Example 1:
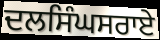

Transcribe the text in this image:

ਦਲਸਿੰਘਸਰਾਏ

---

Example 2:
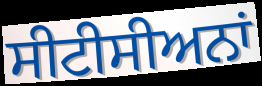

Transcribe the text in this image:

ਸੀਟੀਸੀਅਨਾਂ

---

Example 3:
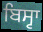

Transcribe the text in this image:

ਬਿਸ੍ਟਾ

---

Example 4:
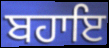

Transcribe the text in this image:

ਬਹਾਇ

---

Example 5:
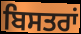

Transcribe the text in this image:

ਬਿਸਤਰਾਂ